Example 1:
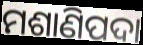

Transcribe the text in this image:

ମଶାଣିପଦା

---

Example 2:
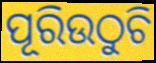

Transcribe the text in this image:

ପୂରିଉଠୁଚି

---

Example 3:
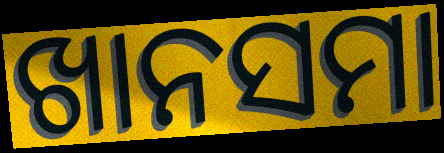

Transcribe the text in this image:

ଖାନସମା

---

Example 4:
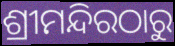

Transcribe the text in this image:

ଶ୍ରୀମନ୍ଦିରଠାରୁ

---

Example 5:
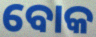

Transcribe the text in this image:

ବୋକ